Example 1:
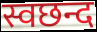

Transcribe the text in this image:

स्वछन्द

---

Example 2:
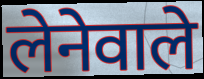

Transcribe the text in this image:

लेनेवाले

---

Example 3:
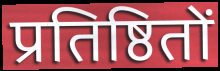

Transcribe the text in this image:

प्रतिष्ठितों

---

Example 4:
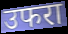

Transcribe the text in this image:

उफरा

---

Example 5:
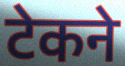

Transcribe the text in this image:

टेकने